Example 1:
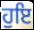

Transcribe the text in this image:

ਹੁਇ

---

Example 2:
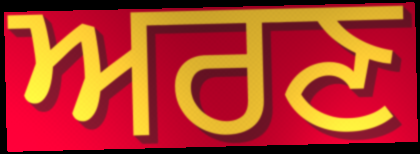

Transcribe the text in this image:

ਅਰਣ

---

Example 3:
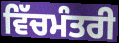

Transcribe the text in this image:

ਵਿੱਚਮੰਤਰੀ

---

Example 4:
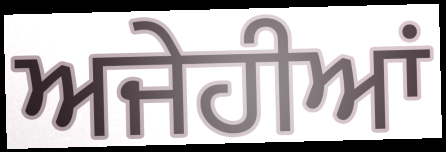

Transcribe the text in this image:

ਅਜੇਹੀਆਂ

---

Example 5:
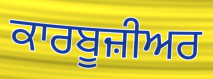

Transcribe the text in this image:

ਕਾਰਬੂਜ਼ੀਅਰ